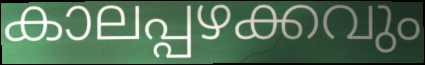
കാലപ്പഴക്കവും